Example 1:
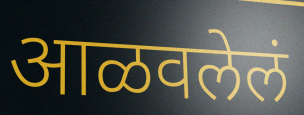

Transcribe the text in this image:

आळवलेलं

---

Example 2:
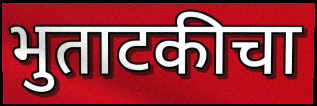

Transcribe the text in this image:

भुताटकीचा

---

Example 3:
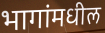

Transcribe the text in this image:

भागांमधील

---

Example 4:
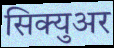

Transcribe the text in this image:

सिक्युअर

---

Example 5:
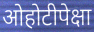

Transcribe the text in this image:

ओहोटीपेक्षा